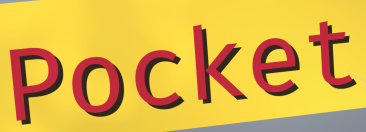
Pocket